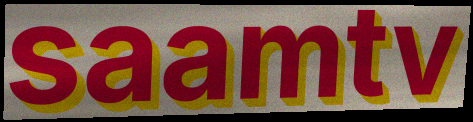
saamtv